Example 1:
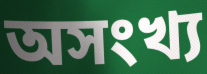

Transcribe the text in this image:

অসংখ্য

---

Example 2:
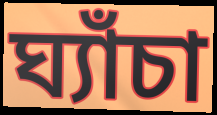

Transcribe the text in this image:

ঘ্যাঁচা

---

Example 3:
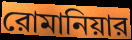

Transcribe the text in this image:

রোমানিয়ার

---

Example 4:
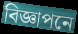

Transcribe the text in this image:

বিজ্ঞাপনে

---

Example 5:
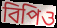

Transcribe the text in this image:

বিপিও